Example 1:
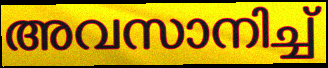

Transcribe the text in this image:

അവസാനിച്ച്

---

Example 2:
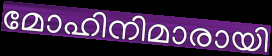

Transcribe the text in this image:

മോഹിനിമാരായി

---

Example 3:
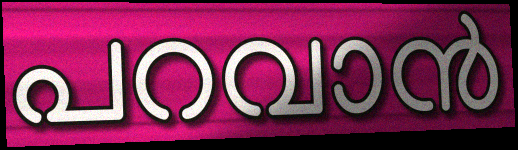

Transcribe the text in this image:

പറവാൻ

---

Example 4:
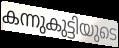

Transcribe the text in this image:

കന്നുകുട്ടിയുടെ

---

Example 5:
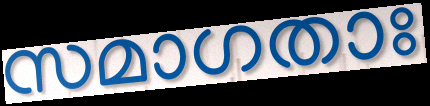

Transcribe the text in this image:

സമാഗതാഃ